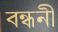
বন্ধনী